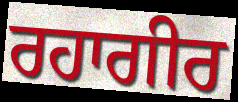
ਰਹਾਗੀਰ